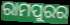
ରାମପୁରର